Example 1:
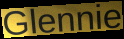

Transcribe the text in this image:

Glennie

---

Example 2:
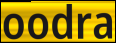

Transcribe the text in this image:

oodra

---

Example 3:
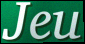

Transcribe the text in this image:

Jeu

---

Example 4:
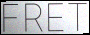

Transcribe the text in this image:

FRET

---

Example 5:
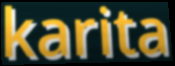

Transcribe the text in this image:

karita